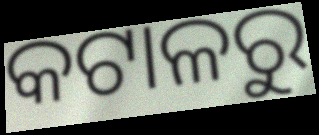
କଟାଳରୁ